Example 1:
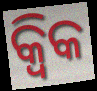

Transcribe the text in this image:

କ୍ୱିକ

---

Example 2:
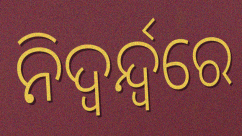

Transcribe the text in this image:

ନିଦ୍ଵର୍ନ୍ଦ୍ୱରେ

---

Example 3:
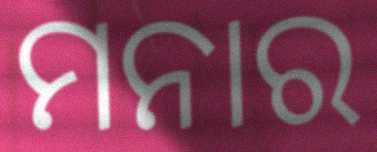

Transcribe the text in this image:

ମନାର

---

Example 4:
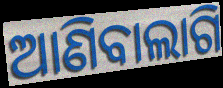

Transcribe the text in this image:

ଆଣିବାଲାଗି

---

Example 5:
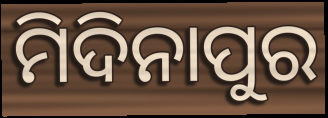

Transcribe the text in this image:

ମିଦିନାପୁର